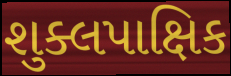
શુક્લપાક્ષિક